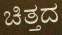
ಚಿತ್ತದ